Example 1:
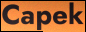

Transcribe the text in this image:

Capek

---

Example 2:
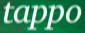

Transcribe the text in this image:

tappo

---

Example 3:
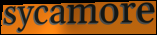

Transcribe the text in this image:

sycamore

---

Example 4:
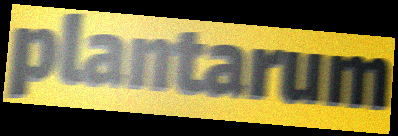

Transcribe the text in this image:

plantarum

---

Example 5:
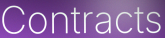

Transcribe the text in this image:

Contracts